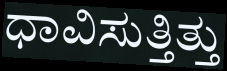
ಧಾವಿಸುತ್ತಿತ್ತು